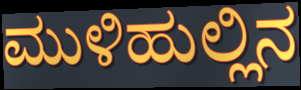
ಮುಳಿಹುಲ್ಲಿನ